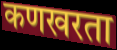
कणखरता